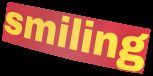
smiling